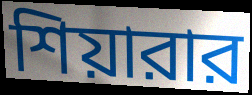
শিয়ারার